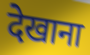
देखाना